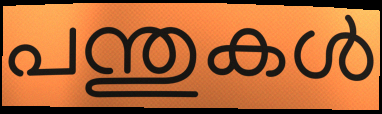
പന്തുകൾ